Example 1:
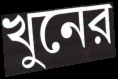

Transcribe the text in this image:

খুনের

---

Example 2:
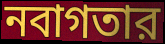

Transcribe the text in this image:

নবাগতার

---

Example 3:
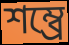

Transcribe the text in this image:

শম্ব্রে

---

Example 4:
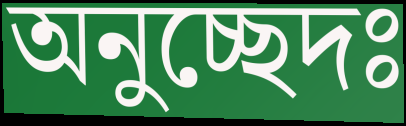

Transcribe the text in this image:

অনুচ্ছেদঃ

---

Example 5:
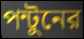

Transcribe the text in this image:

পন্টুনের